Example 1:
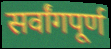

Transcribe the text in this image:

सर्वांगपूर्ण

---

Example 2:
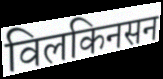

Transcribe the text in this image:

विलकिनसन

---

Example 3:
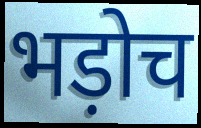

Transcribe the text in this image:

भड़ोच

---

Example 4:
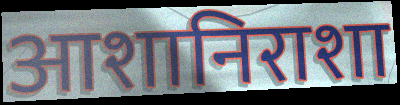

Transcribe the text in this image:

आशानिराशा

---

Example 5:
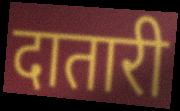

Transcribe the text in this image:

दातारी